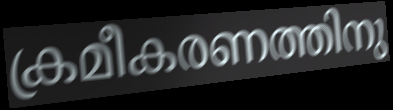
ക്രമീകരണത്തിനു